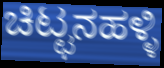
ಚಿಟ್ಟನಹಳ್ಳಿ